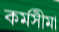
কর্মসীমা